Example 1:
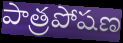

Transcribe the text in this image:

పాత్రపోషణ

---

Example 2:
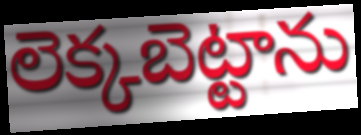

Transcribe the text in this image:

లెక్కబెట్టాను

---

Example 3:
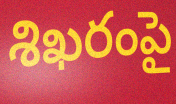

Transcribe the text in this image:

శిఖరంపై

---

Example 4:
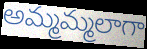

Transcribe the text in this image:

అమ్మమ్మలాగా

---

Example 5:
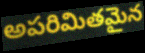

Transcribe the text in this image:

అపరిమితమైన